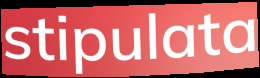
stipulata